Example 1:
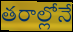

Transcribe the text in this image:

తరాల్లోనే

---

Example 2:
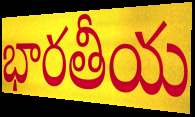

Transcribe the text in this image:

భారతీయ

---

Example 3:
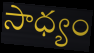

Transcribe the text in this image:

సాధ్యం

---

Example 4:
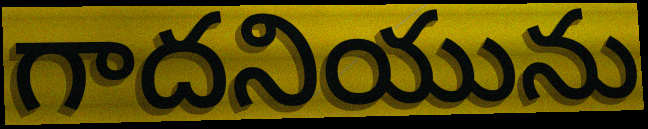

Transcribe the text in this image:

గాదనియును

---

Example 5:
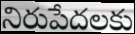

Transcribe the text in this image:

నిరుపేదలకు